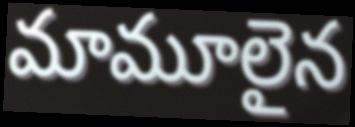
మామూలైన